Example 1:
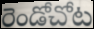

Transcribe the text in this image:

రెండోచోట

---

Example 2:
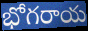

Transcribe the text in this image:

భోగరాయ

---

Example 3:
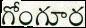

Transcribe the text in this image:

గోంగూర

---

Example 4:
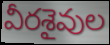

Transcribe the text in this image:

వీరశైవుల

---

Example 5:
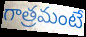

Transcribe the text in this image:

గాత్రమంటే